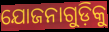
ଯୋଜନାଗୁଡ଼ିକୁ